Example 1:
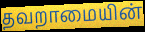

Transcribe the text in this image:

தவறாமையின்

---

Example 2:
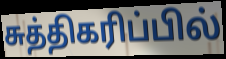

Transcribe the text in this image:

சுத்திகரிப்பில்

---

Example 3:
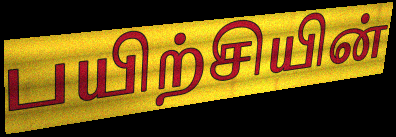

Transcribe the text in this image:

பயிற்சியின்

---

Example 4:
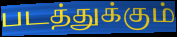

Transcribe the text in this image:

படத்துக்கும்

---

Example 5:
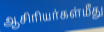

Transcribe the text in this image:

ஆசிரியர்கள்மீது